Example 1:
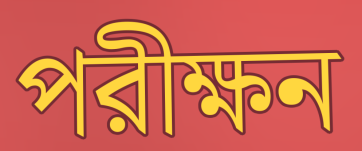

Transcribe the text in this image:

পরীক্ষন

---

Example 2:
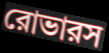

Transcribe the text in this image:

রোভারস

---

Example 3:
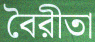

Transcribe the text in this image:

বৈরীতা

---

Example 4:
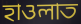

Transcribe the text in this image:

হাওলাত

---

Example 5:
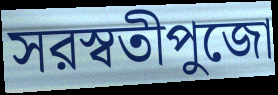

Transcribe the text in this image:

সরস্বতীপুজো